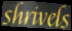
shrivels